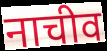
नाचीव